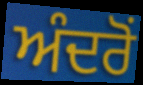
ਅੰਦਰੋਂ